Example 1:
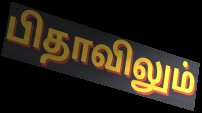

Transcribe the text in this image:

பிதாவிலும்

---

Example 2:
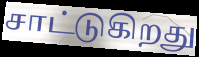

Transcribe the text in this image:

சாட்டுகிறது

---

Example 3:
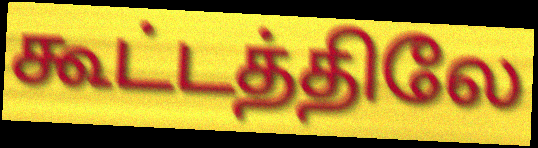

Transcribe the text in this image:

கூட்டத்திலே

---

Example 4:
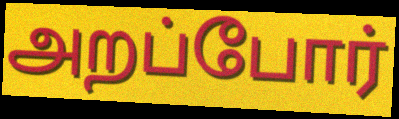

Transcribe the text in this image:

அறப்போர்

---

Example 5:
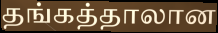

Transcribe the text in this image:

தங்கத்தாலான